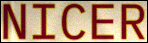
NICER